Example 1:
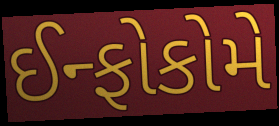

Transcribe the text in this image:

ઈન્ફોકોમે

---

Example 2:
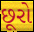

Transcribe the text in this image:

છૂરો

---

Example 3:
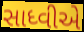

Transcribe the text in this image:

સાધ્વીએ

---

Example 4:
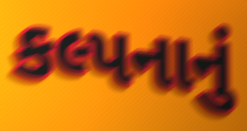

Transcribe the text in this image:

કલ્પનાનું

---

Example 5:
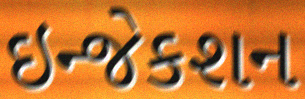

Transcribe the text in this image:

ઇન્જેકશન